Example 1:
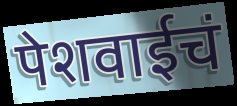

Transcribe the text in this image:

पेशवाईचं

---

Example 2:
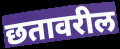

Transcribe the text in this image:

छतावरील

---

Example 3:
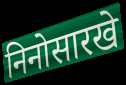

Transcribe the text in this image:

निनोसारखे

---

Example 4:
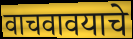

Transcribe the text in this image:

वाचवावयाचे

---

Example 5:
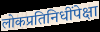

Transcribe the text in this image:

लोकप्रतिनिधींपेक्षा